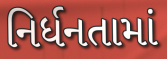
નિર્ધનતામાં